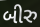
બીરુ